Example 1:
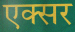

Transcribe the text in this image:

एक्सर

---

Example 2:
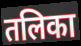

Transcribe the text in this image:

तलिका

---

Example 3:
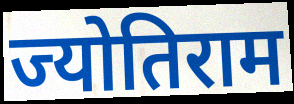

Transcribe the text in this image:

ज्योतिराम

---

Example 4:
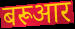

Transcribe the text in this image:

बरूआर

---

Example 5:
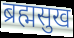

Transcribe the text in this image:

ब्रह्मसुख